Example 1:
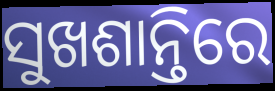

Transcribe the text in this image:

ସୁଖଶାନ୍ତିରେ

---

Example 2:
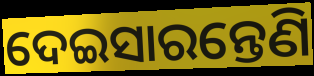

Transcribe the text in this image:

ଦେଇସାରନ୍ତେଣି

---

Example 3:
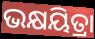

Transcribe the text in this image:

ଭକ୍ଷୟିତ୍ରା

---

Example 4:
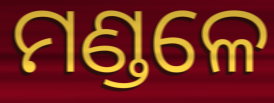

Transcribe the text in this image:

ମଣ୍ଡଳେ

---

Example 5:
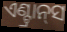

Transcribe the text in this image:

ଏଣ୍ଟ୍ରାନ୍‌ସ